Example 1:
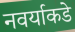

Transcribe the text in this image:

नवर्याकडे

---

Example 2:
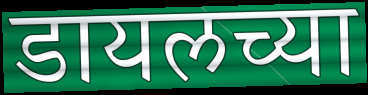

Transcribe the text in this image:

डायलच्या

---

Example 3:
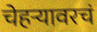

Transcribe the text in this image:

चेहर्‍यावरचं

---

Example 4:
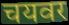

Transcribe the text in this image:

चयवर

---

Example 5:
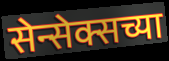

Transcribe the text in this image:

सेन्सेक्सच्या